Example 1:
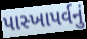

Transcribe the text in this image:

પાસ્ખાપર્વનું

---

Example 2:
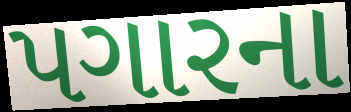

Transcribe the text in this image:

પગારના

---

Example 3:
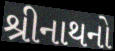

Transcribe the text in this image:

શ્રીનાથનો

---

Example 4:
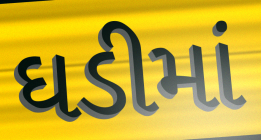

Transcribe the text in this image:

ઘડીમાં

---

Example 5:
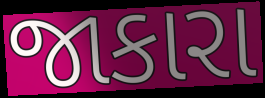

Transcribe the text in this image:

જાકારા